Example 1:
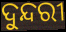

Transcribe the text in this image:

ଦୁନ୍ଦରୀ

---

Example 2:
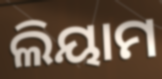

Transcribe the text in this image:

ଲିୟାମ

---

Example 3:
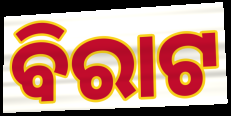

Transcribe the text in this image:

ବିରାଟ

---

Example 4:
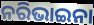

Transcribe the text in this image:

ନରିଭାଇନା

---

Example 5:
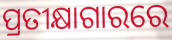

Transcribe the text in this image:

ପ୍ରତୀକ୍ଷାଗାରରେ